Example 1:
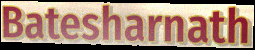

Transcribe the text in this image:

Batesharnath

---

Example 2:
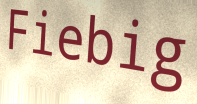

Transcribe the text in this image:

Fiebig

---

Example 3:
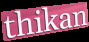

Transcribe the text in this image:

thikan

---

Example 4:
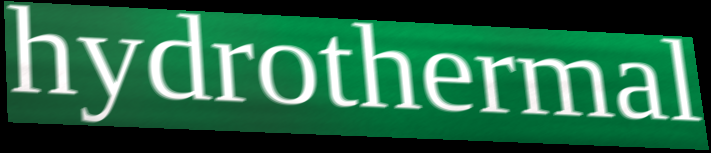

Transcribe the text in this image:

hydrothermal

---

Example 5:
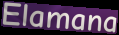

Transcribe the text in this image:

Elamana